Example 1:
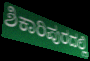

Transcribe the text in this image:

ಶಿಕಾರಿಪುರದಲ್ಲಿ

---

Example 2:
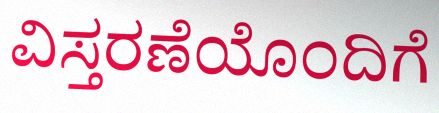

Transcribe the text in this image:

ವಿಸ್ತರಣೆಯೊಂದಿಗೆ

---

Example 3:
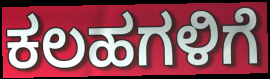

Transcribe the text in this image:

ಕಲಹಗಳಿಗೆ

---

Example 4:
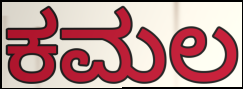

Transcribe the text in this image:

ಕಮಲ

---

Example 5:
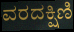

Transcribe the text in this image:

ವರದಕ್ಷಿಣಿ